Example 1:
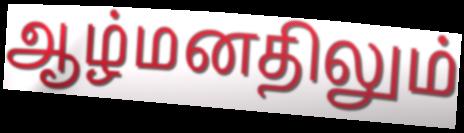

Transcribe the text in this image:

ஆழ்மனதிலும்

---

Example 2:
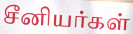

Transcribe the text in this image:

சீனியர்கள்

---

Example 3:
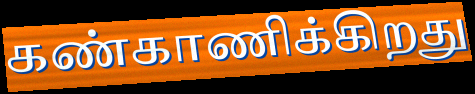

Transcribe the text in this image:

கண்காணிக்கிறது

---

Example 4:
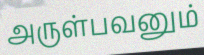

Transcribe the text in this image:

அருள்பவனும்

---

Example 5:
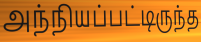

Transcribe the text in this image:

அந்நியப்பட்டிருந்த